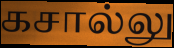
கசால்லு